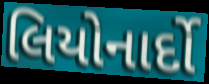
લિયોનાર્દો